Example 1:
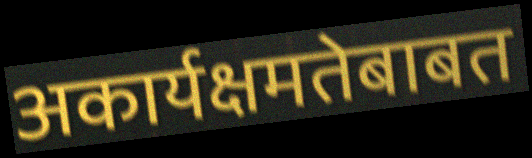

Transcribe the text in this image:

अकार्यक्षमतेबाबत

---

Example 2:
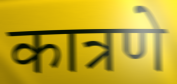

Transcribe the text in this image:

कात्रणे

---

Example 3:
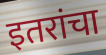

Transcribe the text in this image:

इतरांचा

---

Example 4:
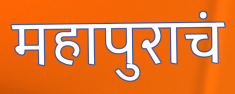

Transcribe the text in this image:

महापुराचं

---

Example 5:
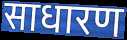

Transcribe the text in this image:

साधारण